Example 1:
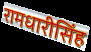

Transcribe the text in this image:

रामधारीसिंह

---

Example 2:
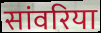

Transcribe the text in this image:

सांवरिया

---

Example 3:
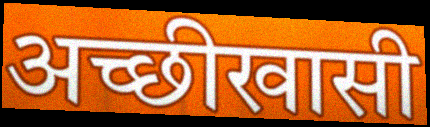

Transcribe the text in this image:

अच्छीखासी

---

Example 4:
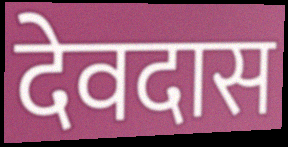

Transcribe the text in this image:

देवदास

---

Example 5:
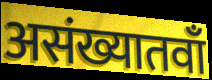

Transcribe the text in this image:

असंख्यातवाँ